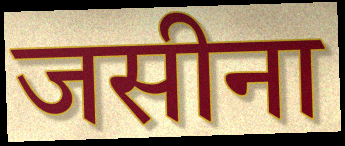
जसीना